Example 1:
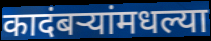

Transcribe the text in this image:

कादंबऱ्यांमधल्या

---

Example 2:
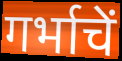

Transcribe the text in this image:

गर्भाचें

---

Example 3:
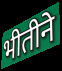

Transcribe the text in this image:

भीतीने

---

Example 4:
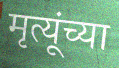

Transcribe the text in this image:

मृत्यूंच्या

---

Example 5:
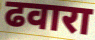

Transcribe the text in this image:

ढवारा